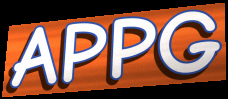
APPG